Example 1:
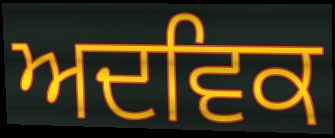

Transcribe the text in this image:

ਅਦਵਿਕ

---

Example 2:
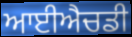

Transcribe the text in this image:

ਆਈਐਚਡੀ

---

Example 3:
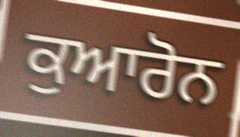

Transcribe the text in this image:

ਕੁਆਰੋਨ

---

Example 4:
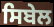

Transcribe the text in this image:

ਸਿਬੇਲ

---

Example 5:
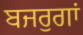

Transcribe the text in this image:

ਬਜਰੁਗਾਂ